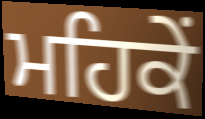
ਮਹਿਕੇਂ